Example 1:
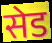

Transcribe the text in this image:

सेड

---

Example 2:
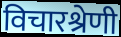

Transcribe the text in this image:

विचारश्रेणी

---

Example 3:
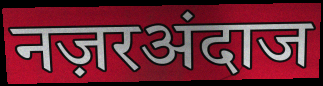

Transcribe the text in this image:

नज़रअंदाज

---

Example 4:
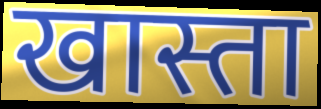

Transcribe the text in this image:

खास्ता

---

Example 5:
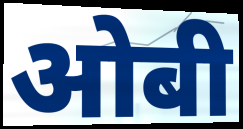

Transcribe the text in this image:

ओबी